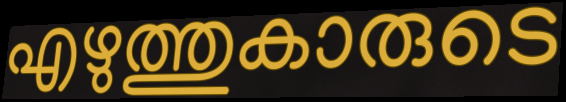
എഴുത്തുകാരുടെ